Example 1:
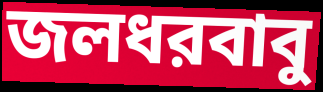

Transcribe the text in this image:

জলধরবাবু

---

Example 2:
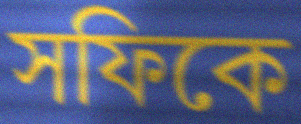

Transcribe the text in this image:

সফিকে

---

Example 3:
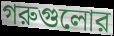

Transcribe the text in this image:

গরুগুলোর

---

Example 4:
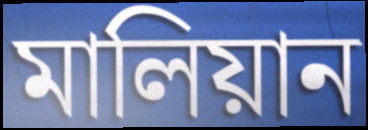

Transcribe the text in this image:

মালিয়ান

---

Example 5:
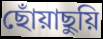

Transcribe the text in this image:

ছোঁয়াছুয়ি